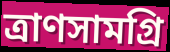
ত্রাণসামগ্রি